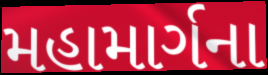
મહામાર્ગના